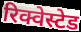
रिक्वेस्टेड